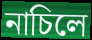
নাচিলে